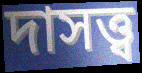
দাসত্ত্ব